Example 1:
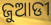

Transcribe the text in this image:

ଜୁଆଡୀ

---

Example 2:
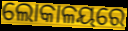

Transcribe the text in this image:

ଲୋକାଳୟରେ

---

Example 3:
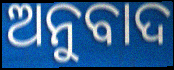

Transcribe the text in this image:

ଅନୁବାଦ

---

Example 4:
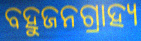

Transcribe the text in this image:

ବହୁଜନଗ୍ରାହ୍ୟ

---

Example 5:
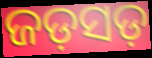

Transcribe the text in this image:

ଜଡ଼ସଡ଼